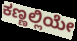
ಕಣ್ಣಲ್ಲಿಯೇ